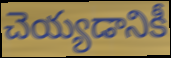
చెయ్యడానికీ